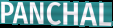
PANCHAL